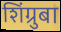
शिंग्रुबा